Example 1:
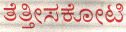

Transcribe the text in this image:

ತೆತ್ತೀಸಕೋಟಿ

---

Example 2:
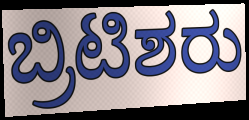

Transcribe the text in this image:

ಬ್ರಿಟಿಶರು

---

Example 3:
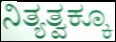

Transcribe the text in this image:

ನಿತ್ಯತ್ವಕ್ಕೂ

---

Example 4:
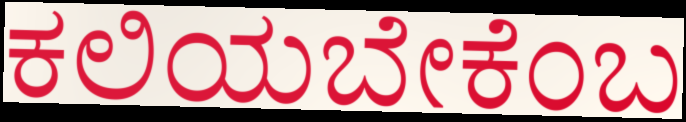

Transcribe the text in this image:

ಕಲಿಯಬೇಕೆಂಬ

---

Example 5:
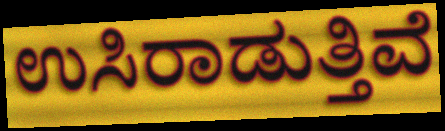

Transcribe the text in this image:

ಉಸಿರಾಡುತ್ತಿವೆ